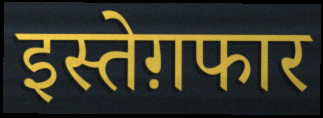
इस्तेग़फार